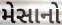
મેસાનો